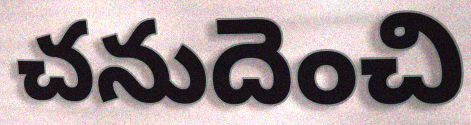
చనుదెంచి